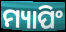
ମ୍ୟାପିଂ